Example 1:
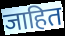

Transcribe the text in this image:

जाहित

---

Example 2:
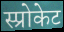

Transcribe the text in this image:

स्प्रोकेट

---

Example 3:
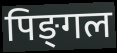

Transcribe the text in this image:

पिङ्गल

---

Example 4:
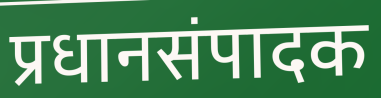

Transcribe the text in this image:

प्रधानसंपादक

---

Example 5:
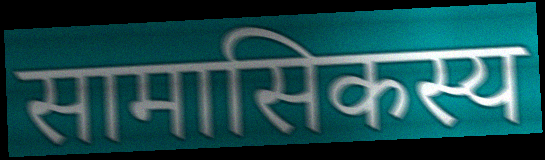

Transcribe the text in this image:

सामासिकस्य